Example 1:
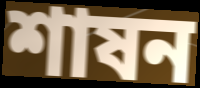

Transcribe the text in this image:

শাষন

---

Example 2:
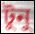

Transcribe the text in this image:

টুনু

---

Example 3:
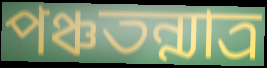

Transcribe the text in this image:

পঞ্চতন্মাত্র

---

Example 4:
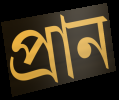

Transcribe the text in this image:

প্রান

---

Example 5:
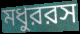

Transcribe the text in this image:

মধুররস